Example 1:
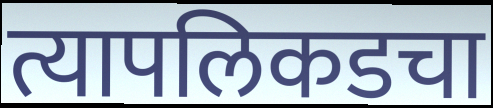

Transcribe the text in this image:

त्यापलिकडचा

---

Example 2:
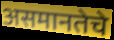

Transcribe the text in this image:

असमानतेचे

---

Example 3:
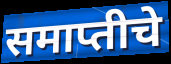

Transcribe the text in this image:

समाप्तीचे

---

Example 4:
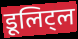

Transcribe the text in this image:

डूलिट्ल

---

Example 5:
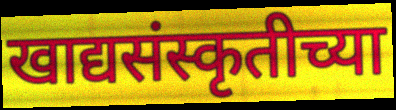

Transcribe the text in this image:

खाद्यसंस्कृतीच्या